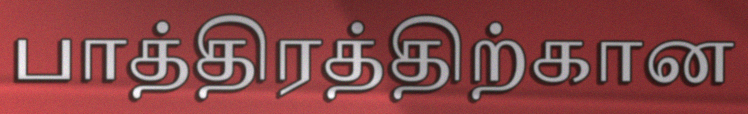
பாத்திரத்திற்கான